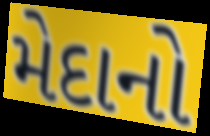
મેદાનો